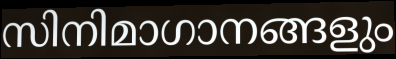
സിനിമാഗാനങ്ങളും